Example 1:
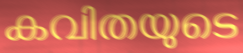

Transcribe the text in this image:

കവിതയുടെ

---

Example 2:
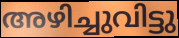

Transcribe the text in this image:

അഴിച്ചുവിട്ടു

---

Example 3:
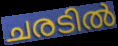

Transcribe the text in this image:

ചരടിൽ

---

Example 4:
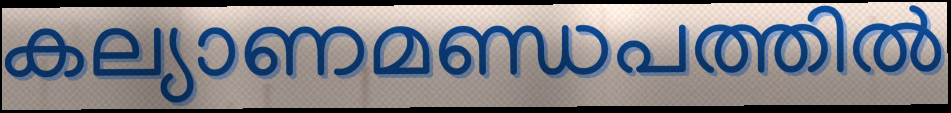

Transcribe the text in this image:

കല്യാണമണ്ഡപത്തിൽ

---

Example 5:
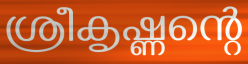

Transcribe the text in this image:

ശ്രീകൃഷ്ണന്റെ